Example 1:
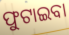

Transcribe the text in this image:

ଫୁଟାଇବା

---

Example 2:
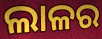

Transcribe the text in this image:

ଲାଳର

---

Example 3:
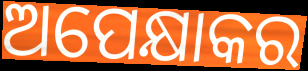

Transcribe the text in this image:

ଅପେକ୍ଷାକର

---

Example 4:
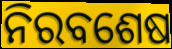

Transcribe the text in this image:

ନିରବଶେଷ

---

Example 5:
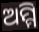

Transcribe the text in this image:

ଅମ୍ମି